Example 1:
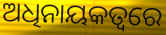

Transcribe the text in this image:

ଅଧିନାୟକତ୍ବରେ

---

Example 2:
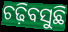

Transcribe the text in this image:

ଚଢ଼ିବସୁଛି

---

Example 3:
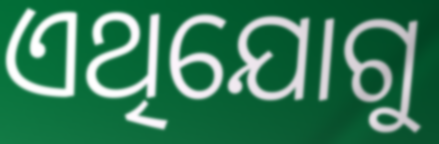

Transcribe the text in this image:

ଏଥିଯୋଗୁ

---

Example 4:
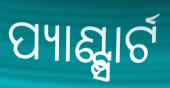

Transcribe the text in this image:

ପ୍ୟାଣ୍ଟ୍ସାର୍ଟ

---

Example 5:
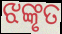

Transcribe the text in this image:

ଝଙ୍କୃତ